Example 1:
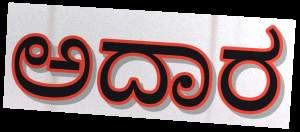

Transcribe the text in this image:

ಅದಾರ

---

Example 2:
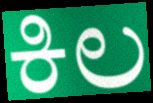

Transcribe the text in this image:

ಕಿಲ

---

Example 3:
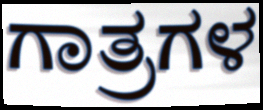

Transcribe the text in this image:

ಗಾತ್ರಗಳ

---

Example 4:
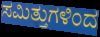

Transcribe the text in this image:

ಸಮಿತ್ತುಗಳಿಂದ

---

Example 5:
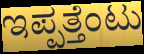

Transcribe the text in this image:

ಇಪ್ಪತ್ತೆಂಟು